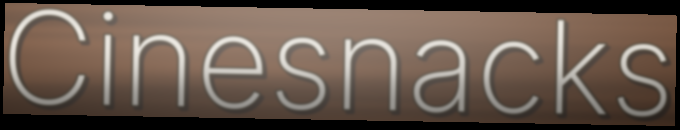
Cinesnacks